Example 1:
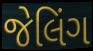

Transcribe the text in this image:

જેલિંગ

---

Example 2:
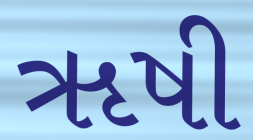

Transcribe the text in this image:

ૠષી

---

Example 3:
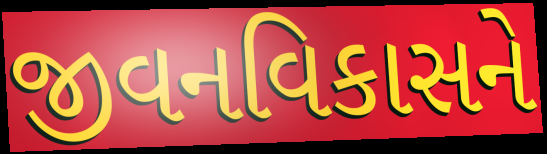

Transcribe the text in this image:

જીવનવિકાસને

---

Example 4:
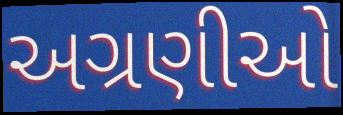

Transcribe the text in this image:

અગ્રણીઓ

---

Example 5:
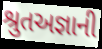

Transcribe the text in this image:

શ્રુતઅજ્ઞાની